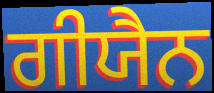
ਗੀਯੈਨ